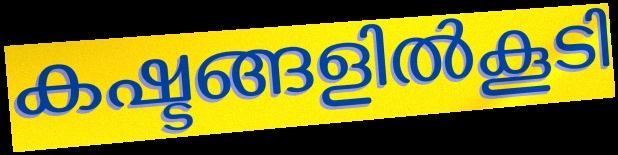
കഷ്ടങ്ങളിൽകൂടി